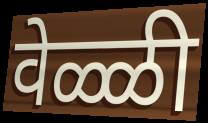
वेळ्ळी